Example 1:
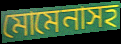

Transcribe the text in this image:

মোমেনাসহ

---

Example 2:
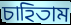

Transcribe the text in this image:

চাহিতাম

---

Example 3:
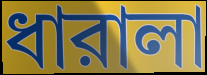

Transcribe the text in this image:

ধারালা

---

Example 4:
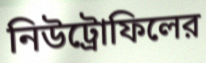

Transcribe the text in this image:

নিউট্রোফিলের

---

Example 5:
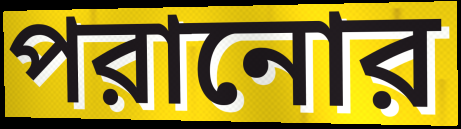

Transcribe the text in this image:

পরানোর